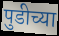
पुडीच्या